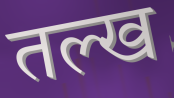
तल्ख